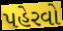
પહેરવો